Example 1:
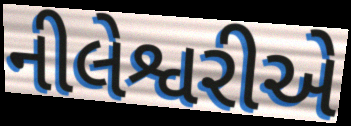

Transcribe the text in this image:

નીલેશ્વરીએ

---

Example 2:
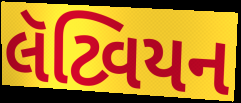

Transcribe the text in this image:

લૅટ્વિયન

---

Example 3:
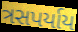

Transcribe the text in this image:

ત્રસપર્યાય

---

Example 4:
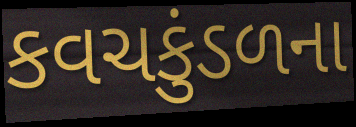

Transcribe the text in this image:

કવચકુંડળના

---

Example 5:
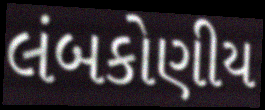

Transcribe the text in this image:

લંબકોણીય